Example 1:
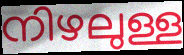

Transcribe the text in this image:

നിഴലുള്ള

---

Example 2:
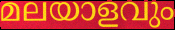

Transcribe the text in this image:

മലയാളവും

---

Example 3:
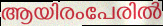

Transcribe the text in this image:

ആയിരംപേരിൽ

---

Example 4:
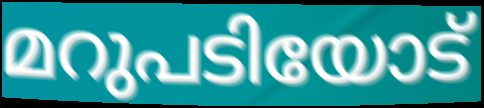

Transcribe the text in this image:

മറുപടിയോട്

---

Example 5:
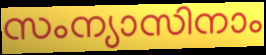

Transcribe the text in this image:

സംന്യാസിനാം